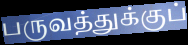
பருவத்துக்குப்